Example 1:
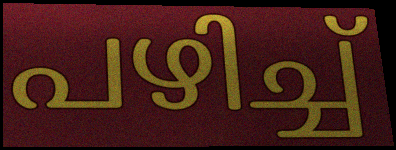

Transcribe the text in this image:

പഴിച്ച്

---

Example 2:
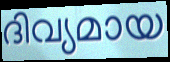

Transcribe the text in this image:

ദിവ്യമായ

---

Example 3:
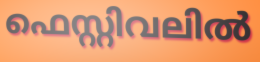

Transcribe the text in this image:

ഫെസ്റ്റിവലിൽ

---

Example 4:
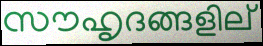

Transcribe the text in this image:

സൗഹൃദങ്ങളില്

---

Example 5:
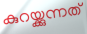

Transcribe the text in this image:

കുറയ്ക്കുന്നത്